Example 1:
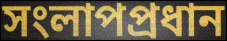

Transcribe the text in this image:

সংলাপপ্রধান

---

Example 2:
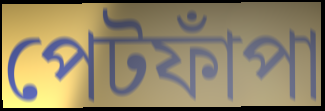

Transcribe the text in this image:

পেটফাঁপা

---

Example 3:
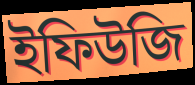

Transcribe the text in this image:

ইফিউজি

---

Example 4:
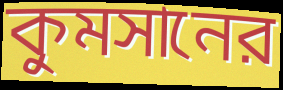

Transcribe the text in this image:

কুমসানের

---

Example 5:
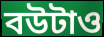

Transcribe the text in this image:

বউটাও